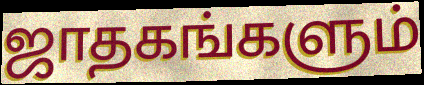
ஜாதகங்களும்